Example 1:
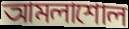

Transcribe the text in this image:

আমলাশোল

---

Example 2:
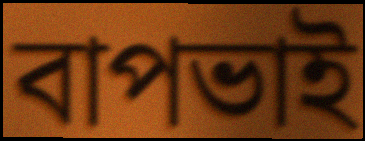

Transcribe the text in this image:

বাপভাই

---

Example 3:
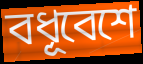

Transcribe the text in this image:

বধূবেশে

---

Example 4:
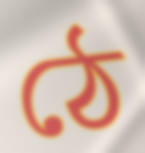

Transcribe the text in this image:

ঠে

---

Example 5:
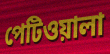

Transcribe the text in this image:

পেটিওয়ালা